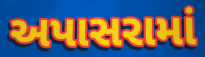
અપાસરામાં